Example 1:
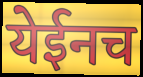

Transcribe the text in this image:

येईनच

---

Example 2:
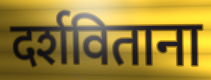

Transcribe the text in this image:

दर्शविताना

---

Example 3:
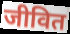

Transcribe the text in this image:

जीवित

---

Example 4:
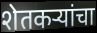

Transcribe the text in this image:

शेतकर्‍यांचा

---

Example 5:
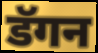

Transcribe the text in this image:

डॅगन